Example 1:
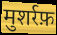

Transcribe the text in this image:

मुशर्रफ़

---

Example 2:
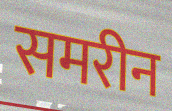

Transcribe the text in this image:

समरीन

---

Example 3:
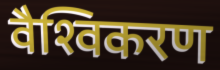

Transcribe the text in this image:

वैश्विकरण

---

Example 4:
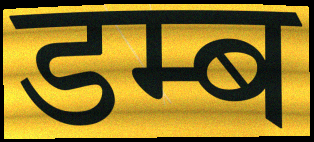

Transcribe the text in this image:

डम्ब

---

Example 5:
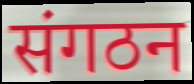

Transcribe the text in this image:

संगठन